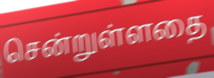
சென்றுள்ளதை